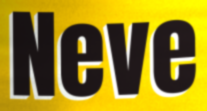
Neve